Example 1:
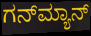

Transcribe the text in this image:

ಗನ್‌ಮ್ಯಾನ್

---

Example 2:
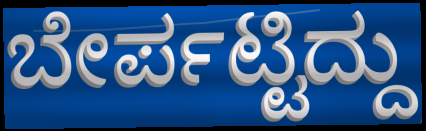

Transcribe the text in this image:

ಬೇರ್ಪಟ್ಟಿದ್ದು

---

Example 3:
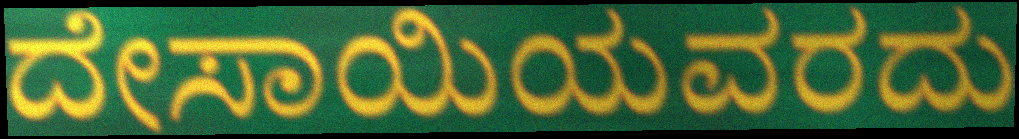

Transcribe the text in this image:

ದೇಸಾಯಿಯವರದು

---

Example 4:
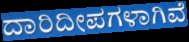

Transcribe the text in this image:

ದಾರಿದೀಪಗಳಾಗಿವೆ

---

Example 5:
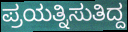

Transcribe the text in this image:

ಪ್ರಯತ್ನಿಸುತಿದ್ದ